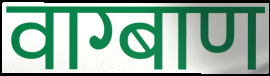
वाग्बाण